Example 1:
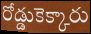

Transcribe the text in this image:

రోడ్డుకెక్కారు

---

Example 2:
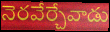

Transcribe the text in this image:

నెరవేర్చేవాడు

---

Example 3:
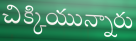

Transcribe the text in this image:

చిక్కియున్నారు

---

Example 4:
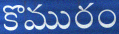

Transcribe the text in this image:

కొమురం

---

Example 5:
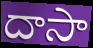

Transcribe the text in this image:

దాసా